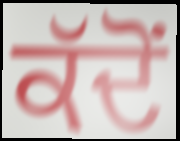
ਕੱਦੋਂ